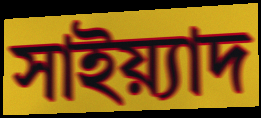
সাইয়্যাদ